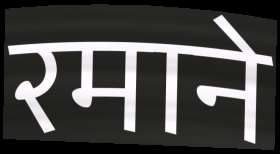
रमाने